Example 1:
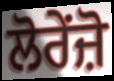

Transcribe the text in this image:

ਲੋਰੇਂਜ਼ੋ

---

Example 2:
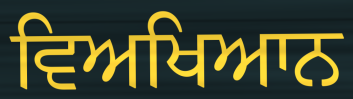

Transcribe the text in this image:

ਵਿਅਖਿਆਨ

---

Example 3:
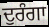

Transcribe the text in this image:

ਦੁਰੰਗਾ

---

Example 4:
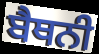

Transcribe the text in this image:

ਬੈਥਨੀ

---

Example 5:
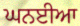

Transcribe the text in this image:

ਘਨਈਆ